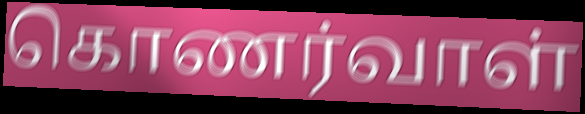
கொணர்வாள்